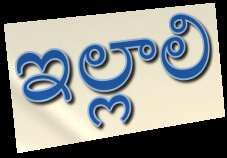
ఇల్లాలి